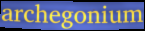
archegonium